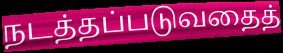
நடத்தப்படுவதைத்